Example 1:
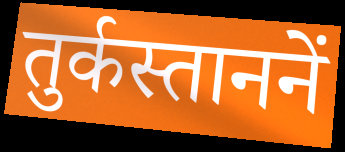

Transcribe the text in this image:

तुर्कस्ताननें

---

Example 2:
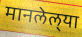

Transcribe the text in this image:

मानलेल्या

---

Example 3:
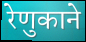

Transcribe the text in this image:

रेणुकाने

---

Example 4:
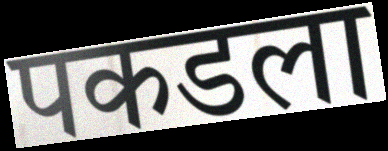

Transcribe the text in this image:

पकडला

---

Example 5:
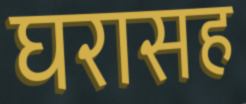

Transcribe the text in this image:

घरासह